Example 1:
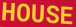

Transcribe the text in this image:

HOUSE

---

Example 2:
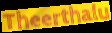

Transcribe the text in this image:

Theerthalu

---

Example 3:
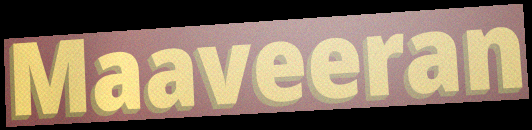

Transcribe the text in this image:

Maaveeran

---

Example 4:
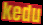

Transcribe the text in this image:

kedu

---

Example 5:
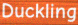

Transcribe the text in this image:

Duckling